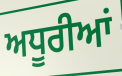
ਅਧੂਰੀਆਂ